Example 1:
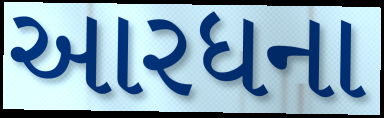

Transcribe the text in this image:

આરધના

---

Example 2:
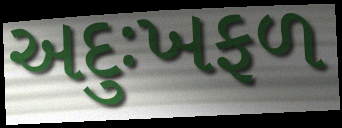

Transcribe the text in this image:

અદુઃખફળ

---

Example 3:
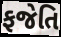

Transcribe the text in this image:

ફજેતિ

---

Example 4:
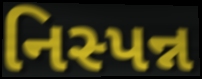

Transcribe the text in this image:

નિસ્પન્ન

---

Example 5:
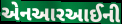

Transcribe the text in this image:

એનઆરઆઈની